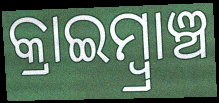
କ୍ରାଇମ୍ବ୍ରାଞ୍ଚ